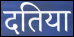
दतिया